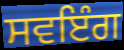
ਸਵਇੰਗ